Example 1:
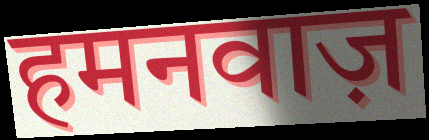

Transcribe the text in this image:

हमनवाज़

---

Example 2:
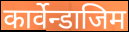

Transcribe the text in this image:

कार्वेन्डाजिम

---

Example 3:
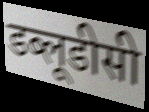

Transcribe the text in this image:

डब्लूडीसी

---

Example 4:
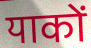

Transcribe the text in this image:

याकों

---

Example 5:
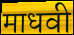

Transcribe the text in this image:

माधवी